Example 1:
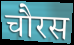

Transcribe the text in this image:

चौरस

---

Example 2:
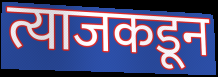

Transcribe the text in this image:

त्याजकडून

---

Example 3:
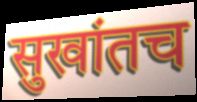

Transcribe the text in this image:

सुखांतच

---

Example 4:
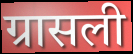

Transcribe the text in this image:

ग्रासली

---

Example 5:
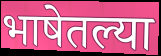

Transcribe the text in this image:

भाषेतल्या